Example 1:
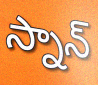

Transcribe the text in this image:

స్నాన్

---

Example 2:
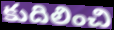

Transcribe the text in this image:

కుదిలించి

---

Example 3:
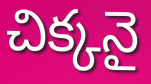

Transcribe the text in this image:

చిక్కనై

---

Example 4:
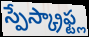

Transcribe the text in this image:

స్పేస్క్రాఫ్ట్ల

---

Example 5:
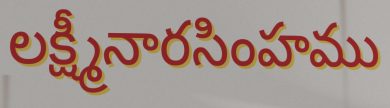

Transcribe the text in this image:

లక్ష్మీనారసింహము